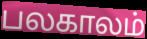
பலகாலம்